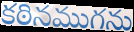
కఠినముగను